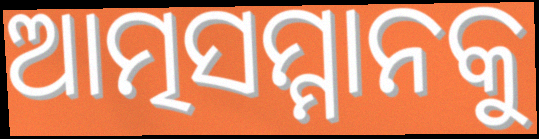
ଆତ୍ମସମ୍ମାନକୁ